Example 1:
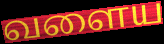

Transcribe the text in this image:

வளைய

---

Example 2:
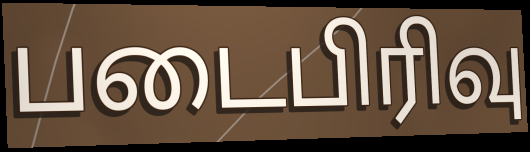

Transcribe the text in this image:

படைபிரிவு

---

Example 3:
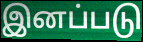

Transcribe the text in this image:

இனப்படு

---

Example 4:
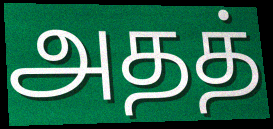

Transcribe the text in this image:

அதத்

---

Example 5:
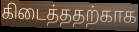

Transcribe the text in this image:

கிடைத்ததற்காக